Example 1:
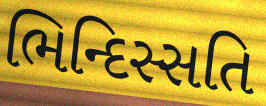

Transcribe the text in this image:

ભિન્દિસ્સતિ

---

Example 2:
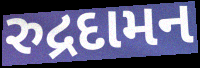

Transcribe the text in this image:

રુદ્રદામન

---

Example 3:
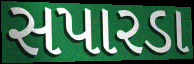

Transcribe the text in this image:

સપારડા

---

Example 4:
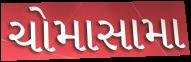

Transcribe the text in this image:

ચોમાસામા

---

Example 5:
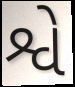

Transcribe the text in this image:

શ્વે